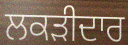
ਲਕੜੀਦਾਰ